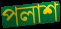
পলাশ